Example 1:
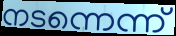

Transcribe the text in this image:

നടന്നെന്ന്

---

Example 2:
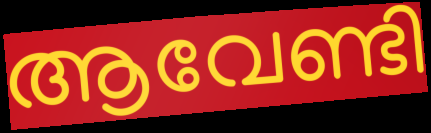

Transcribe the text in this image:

ആവേണ്ടി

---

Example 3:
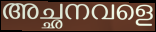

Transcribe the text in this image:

അച്ഛനവളെ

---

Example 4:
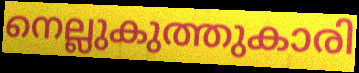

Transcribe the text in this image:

നെല്ലുകുത്തുകാരി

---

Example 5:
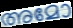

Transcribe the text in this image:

അമോ